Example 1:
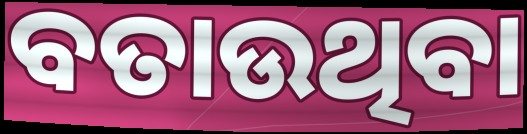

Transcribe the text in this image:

ବତାଉଥିବା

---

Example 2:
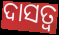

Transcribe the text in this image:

ଦାସତ୍ବ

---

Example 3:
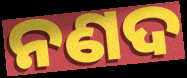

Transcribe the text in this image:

ନଣଦ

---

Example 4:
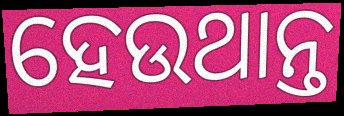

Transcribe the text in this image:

ହେଉଥାନ୍ତ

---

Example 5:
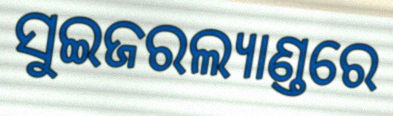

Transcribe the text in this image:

ସୁଇଜରଲ୍ୟାଣ୍ଡରେ